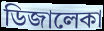
ডিজালেকা